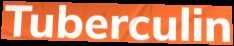
Tuberculin